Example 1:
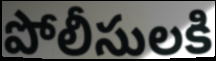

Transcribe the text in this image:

పోలీసులకి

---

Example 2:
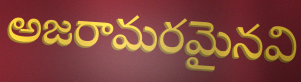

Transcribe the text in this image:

అజరామరమైనవి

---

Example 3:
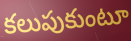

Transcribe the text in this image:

కలుపుకుంటూ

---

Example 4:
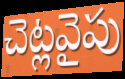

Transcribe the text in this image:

చెట్లవైపు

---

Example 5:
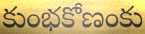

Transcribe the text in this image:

కుంభకోణంకు